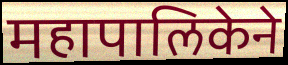
महापालिकेने